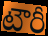
టౌరీ